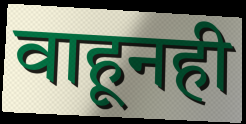
वाहूनही